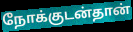
நோக்குடன்தான்